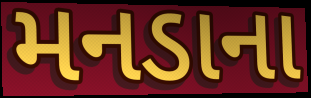
મનડાના